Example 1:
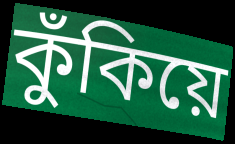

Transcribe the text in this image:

কুঁকিয়ে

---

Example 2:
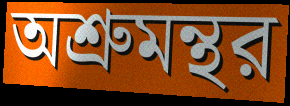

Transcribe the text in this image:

অশ্রুমন্থর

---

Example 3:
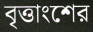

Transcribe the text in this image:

বৃত্তাংশের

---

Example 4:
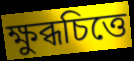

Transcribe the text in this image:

ক্ষুব্ধচিত্তে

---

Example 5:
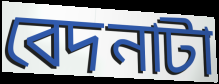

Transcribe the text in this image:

বেদনাটা